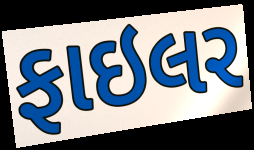
ફાઇલર